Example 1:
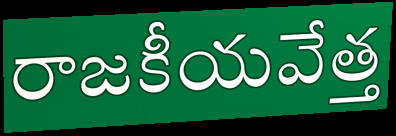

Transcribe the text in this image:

రాజకీయవేత్త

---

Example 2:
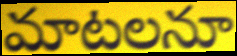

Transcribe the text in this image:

మాటలనూ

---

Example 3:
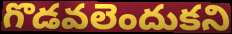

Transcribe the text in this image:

గొడవలెందుకని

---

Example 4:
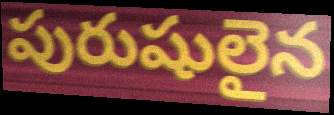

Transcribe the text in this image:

పురుషులైన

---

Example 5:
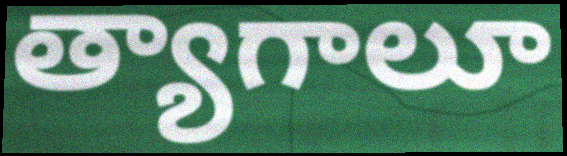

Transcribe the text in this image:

త్యాగాలూ